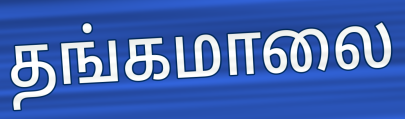
தங்கமாலை